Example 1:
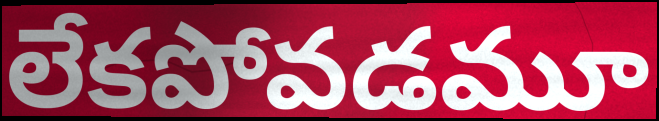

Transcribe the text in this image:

లేకపోవడమూ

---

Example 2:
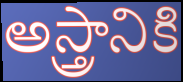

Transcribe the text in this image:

అస్త్రానికి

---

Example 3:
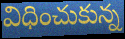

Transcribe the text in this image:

విధించుకున్న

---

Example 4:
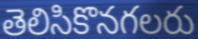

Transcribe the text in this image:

తెలిసికొనగలరు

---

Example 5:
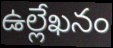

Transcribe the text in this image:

ఉల్లేఖనం